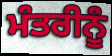
ਮੰਤਰੀਨੂੰ